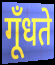
गूँधते